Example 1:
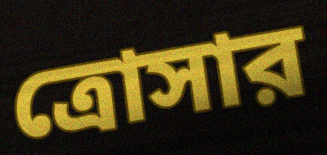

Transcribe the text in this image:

ত্রোসার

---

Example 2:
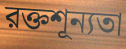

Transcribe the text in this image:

রক্তশূন্যতা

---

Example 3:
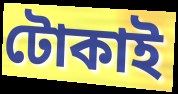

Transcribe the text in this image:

টোকাই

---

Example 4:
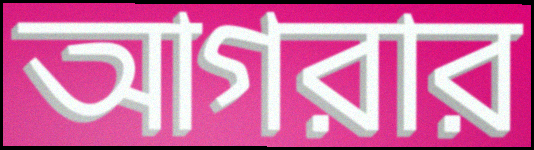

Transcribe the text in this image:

আগরার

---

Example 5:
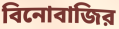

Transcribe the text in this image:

বিনোবাজির